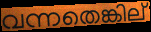
വന്നതെങ്കില്